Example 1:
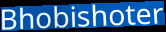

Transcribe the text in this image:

Bhobishoter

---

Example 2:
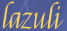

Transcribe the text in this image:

lazuli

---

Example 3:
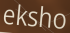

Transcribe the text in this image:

eksho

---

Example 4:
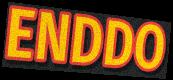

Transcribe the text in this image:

ENDDO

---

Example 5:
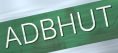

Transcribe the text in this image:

ADBHUT